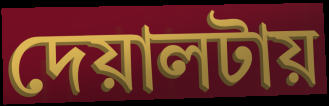
দেয়ালটায়